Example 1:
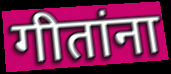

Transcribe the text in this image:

गीतांना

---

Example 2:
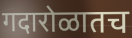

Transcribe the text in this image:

गदारोळातच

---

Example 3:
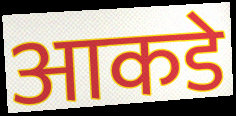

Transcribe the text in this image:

आकडे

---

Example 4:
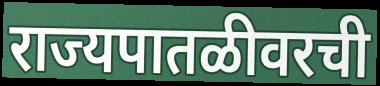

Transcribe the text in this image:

राज्यपातळीवरची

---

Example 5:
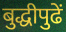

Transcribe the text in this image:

बुद्धीपुढें